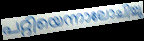
പറ്റിയെന്നാലോചിച്ചു